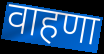
वाहणा